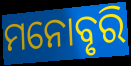
ମନୋବୃରି